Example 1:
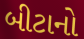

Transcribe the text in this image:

બીટાનો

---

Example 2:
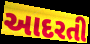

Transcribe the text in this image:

આદરતી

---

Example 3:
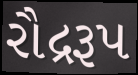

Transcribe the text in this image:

રૌદ્રરૂપ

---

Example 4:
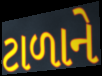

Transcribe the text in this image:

ટાળાને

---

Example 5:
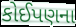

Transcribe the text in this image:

કોઈપણના